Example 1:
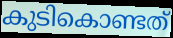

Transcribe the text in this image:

കുടികൊണ്ടത്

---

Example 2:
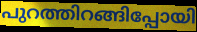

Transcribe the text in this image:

പുറത്തിറങ്ങിപ്പോയി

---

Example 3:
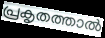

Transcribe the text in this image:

പ്രകൃതത്താൽ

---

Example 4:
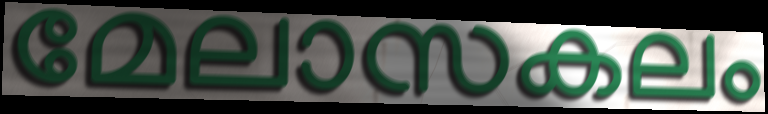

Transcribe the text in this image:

മേലാസകലം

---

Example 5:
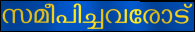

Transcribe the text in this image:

സമീപിച്ചവരോട്